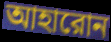
আহারোন